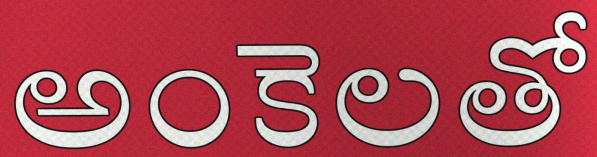
అంకెలతో